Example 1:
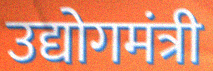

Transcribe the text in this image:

उद्योगमंत्री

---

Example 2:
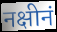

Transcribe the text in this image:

नक्षीनं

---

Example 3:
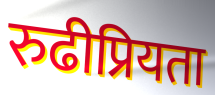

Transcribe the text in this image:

रुढीप्रियता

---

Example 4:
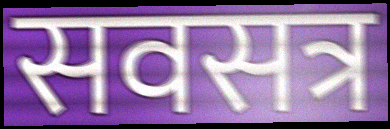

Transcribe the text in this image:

सवसत्र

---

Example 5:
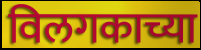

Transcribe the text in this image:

विलगकाच्या